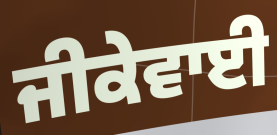
ਜੀਕੇਵਾਈ